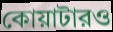
কোয়াটারও